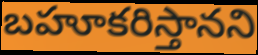
బహూకరిస్తానని